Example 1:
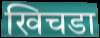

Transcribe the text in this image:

खिचडा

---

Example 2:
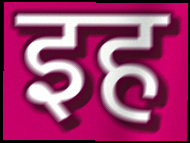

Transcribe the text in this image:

इह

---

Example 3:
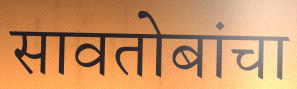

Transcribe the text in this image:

सावतोबांचा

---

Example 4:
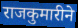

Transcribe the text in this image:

राजकुमारीने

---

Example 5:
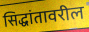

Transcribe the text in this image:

सिद्धांतावरील